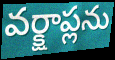
వర్క్షాప్లను